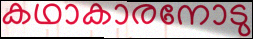
കഥാകാരനോടു